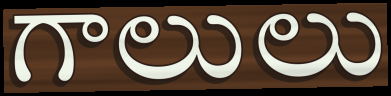
గాలులు